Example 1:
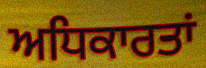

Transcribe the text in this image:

ਅਧਿਕਾਰਤਾਂ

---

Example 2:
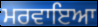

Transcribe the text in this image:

ਮਰਵਾਇਆ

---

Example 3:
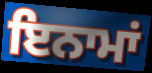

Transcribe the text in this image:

ਇਨਾਮਾਂ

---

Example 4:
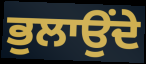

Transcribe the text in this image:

ਭੁਲਾਉਂਦੇ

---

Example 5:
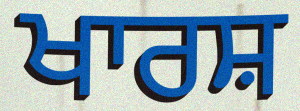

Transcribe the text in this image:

ਖਾਰਸ਼